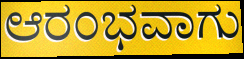
ಆರಂಭವಾಗು